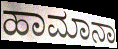
ಹಾಮಾನಾ